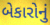
બેકારોનું